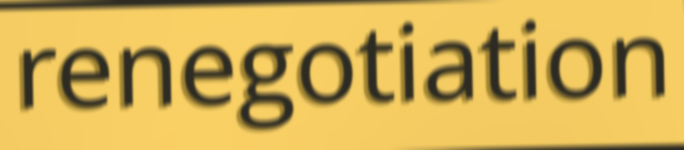
renegotiation